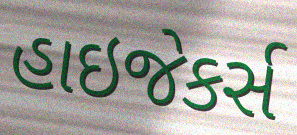
હાઇજેકર્સ